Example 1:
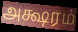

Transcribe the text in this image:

அக்ஷரம்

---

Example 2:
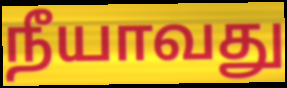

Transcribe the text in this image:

நீயாவது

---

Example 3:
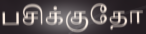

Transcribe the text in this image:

பசிக்குதோ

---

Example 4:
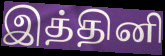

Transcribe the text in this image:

இத்தினி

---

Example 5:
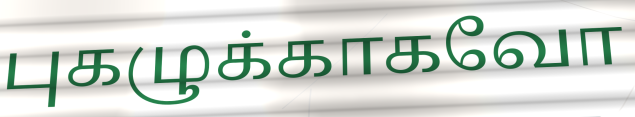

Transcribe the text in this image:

புகழுக்காகவோ